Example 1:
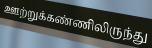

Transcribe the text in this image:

ஊற்றுக்கண்ணிலிருந்து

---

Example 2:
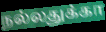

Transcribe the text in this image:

நல்லதுக்கா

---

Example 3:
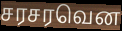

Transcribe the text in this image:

சரசரவென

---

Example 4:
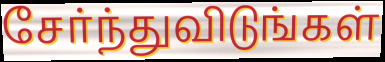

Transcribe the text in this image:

சேர்ந்துவிடுங்கள்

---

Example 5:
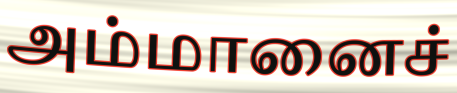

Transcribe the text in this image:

அம்மானைச்